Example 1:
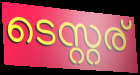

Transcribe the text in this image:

ടെസ്റ്റര്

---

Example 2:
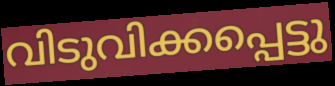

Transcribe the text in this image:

വിടുവിക്കപ്പെട്ടു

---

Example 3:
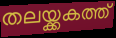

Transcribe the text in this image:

തലയ്ക്കകത്ത്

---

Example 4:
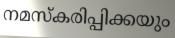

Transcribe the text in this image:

നമസ്കരിപ്പിക്കയും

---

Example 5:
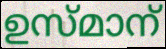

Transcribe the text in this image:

ഉസ്മാന്